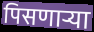
पिसणाऱ्या